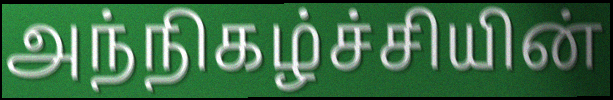
அந்நிகழ்ச்சியின்